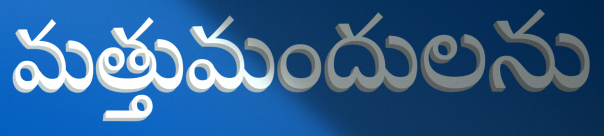
మత్తుమందులను